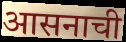
आसनाची